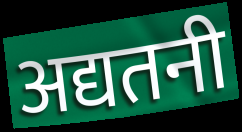
अद्यतनी